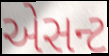
એસન્ટ